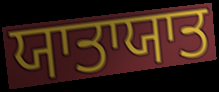
ਯਾਤਾਯਾਤ